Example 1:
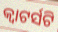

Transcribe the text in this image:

କ୍ୱାଟର୍ସଟି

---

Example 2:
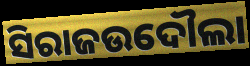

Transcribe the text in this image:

ସିରାଜଉଦୌଲା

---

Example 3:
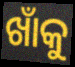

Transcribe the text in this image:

ଖାଁକୁ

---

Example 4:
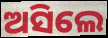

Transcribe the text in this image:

ଅସିଲେ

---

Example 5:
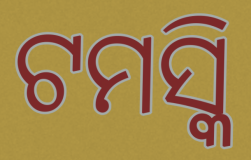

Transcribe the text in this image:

ଟମସ୍କି